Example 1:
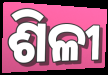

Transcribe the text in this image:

ଶିଳୀ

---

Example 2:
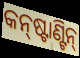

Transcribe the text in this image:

କନ୍‌ଷ୍ଟାଣ୍ଟିନ୍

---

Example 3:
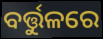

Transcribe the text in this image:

ବର୍ତ୍ତୁଳରେ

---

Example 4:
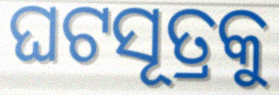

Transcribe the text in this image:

ଘଟସୂତ୍ରକୁ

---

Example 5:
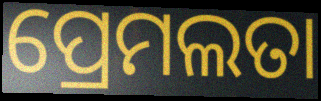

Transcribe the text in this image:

ପ୍ରେମଲତା